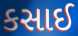
કસાઈ